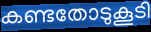
കണ്ടതോടുകൂടി